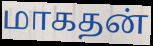
மாகதன்